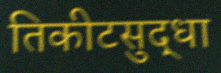
तिकीटसुद्धा